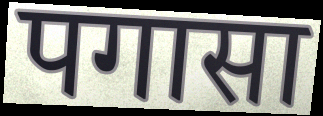
पगासा